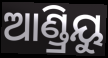
ଆଣ୍ଡ୍ରିୟୁ